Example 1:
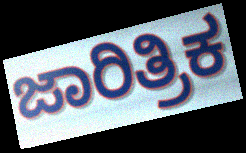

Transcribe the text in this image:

ಜಾರಿತ್ರಿಕ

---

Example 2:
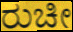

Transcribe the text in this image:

ರುಚೀ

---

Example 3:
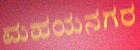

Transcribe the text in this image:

ಮಹಯನಗರ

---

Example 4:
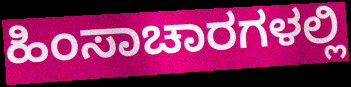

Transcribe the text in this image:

ಹಿಂಸಾಚಾರಗಳಲ್ಲಿ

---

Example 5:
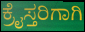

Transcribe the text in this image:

ಕ್ರೈಸ್ತರಿಗಾಗಿ